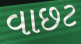
વાછટ